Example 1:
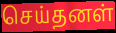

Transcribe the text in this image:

செய்தனள்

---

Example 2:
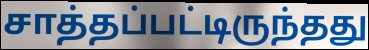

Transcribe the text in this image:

சாத்தப்பட்டிருந்தது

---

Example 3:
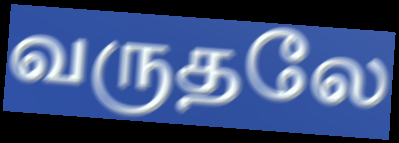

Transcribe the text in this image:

வருதலே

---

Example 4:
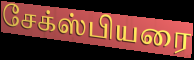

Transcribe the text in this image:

சேக்ஸ்பியரை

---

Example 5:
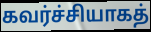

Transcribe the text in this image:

கவர்ச்சியாகத்